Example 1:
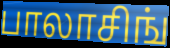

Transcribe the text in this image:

பாலாசிங்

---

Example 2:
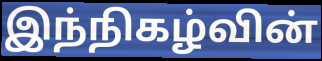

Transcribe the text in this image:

இந்நிகழ்வின்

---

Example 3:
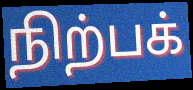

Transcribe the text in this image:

நிற்பக்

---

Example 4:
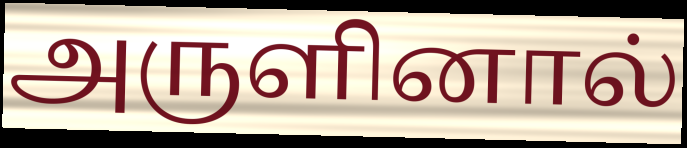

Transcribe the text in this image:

அருளினால்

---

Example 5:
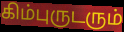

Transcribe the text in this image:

கிம்புருடரும்